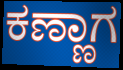
ಕಣ್ಣಾಗ